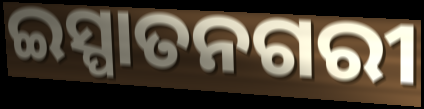
ଇସ୍ପାତନଗରୀ